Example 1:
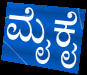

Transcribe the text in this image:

ಮೈಕೈ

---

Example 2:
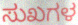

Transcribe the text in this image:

ಸುಖಗಳ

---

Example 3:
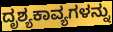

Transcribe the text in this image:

ದೃಶ್ಯಕಾವ್ಯಗಳನ್ನು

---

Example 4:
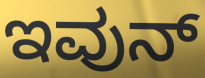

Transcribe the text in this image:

ಇವುನ್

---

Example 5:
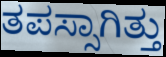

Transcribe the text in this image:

ತಪಸ್ಸಾಗಿತ್ತು